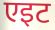
एइट